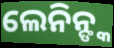
ଲେନିନ୍ଙ୍କ